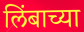
लिंबाच्या